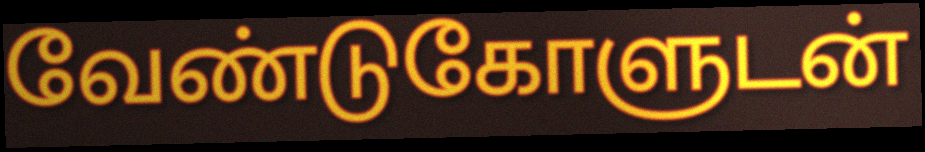
வேண்டுகோளுடன்